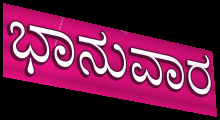
ಭಾನುವಾರ